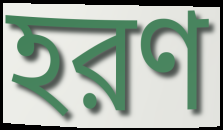
হরণ